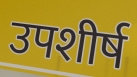
उपशीर्ष